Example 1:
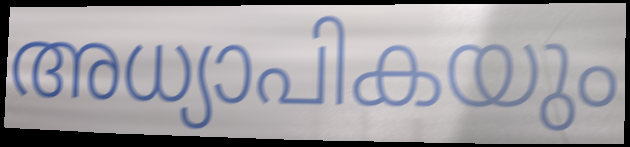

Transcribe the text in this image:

അധ്യാപികയും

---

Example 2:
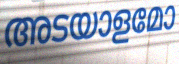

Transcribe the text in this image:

അടയാളമോ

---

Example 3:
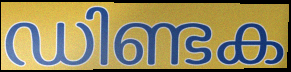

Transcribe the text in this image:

ഡിണ്ടക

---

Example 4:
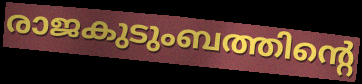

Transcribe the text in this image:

രാജകുടുംബത്തിന്റെ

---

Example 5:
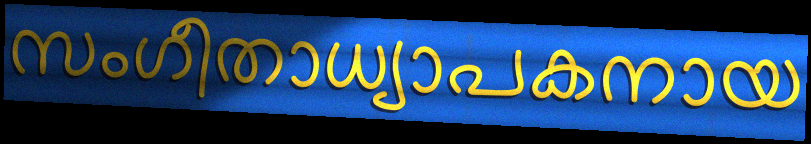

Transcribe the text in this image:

സംഗീതാധ്യാപകനായ